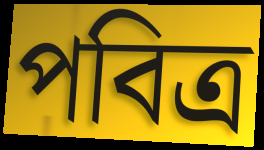
পবিত্ৰ